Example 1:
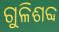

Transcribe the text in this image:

ଗୁଳିଶବ୍ଦ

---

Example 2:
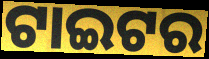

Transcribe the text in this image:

ଟାଇଟର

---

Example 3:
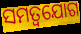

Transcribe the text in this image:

ସମତ୍ୱଯୋଗ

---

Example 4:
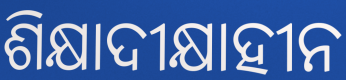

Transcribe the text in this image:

ଶିକ୍ଷାଦୀକ୍ଷାହୀନ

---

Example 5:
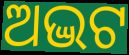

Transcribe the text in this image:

ଅଦ୍ଭଟ